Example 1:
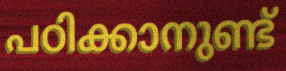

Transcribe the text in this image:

പഠിക്കാനുണ്ട്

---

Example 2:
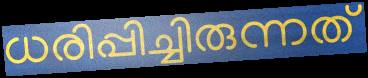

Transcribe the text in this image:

ധരിപ്പിച്ചിരുന്നത്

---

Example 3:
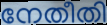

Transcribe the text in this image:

നേതീതി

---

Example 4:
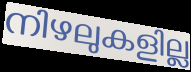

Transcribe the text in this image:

നിഴലുകളില്ല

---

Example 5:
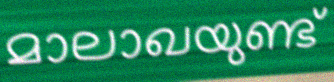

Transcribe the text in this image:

മാലാഖയുണ്ട്